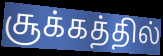
சூக்கத்தில்